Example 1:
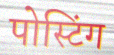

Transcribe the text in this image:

पोस्टिंग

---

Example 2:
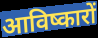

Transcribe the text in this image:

आविष्कारों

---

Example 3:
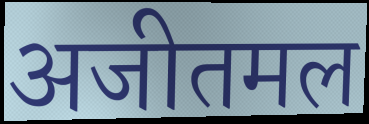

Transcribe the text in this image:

अजीतमल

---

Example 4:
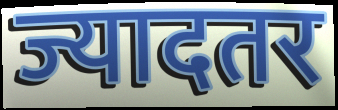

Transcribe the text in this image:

ज्यादतर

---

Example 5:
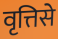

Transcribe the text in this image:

वृत्तिसे